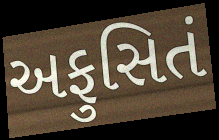
અફુસિતં